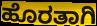
ಹೊರತಾಗಿ